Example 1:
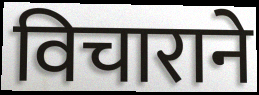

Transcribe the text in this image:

विचाराने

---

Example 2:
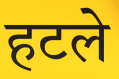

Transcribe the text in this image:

हटले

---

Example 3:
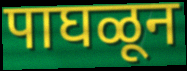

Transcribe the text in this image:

पाघळून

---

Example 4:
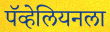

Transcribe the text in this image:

पॅव्हेलियनला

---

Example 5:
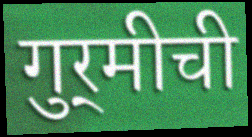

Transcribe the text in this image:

गुर्मीची